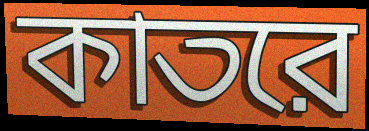
কাতরে